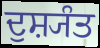
ਦੁਸ਼੍ਯੰਤ